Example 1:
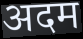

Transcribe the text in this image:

अदम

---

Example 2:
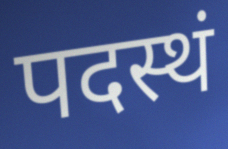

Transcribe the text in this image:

पदस्थं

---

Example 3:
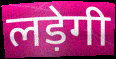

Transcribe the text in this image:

लड़ेगी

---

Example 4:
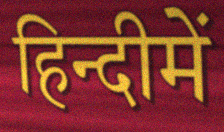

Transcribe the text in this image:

हिन्दीमें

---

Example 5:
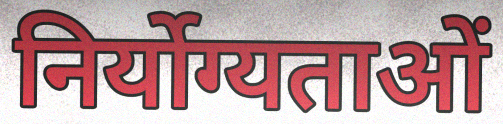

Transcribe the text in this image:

निर्योग्यताओं